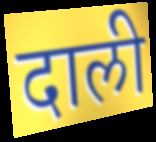
दाली